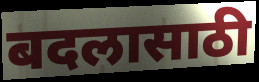
बदलासाठी